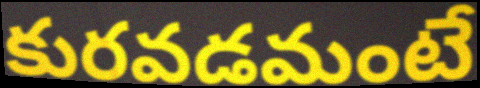
కురవడమంటే